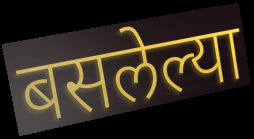
बसलेल्या